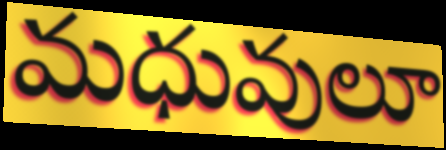
మధువులూ